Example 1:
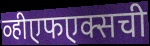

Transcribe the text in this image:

व्हीएफएक्सची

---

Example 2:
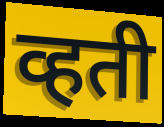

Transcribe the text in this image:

व्हती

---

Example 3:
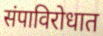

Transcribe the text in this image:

संपाविरोधात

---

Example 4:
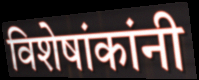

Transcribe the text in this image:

विशेषांकांनी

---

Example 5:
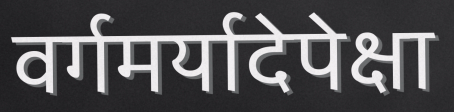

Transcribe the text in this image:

वर्गमर्यादेपेक्षा